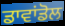
ਡਾਵਾਂਡੋਲ